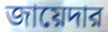
জায়েদার